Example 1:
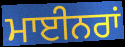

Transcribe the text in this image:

ਮਾਈਨਰਾਂ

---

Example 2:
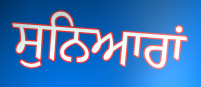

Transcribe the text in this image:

ਸੁਨਿਆਰਾਂ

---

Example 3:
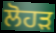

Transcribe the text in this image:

ਲੋਹੜ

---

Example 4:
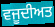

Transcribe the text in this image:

ਵਜੂਦੀਅਤ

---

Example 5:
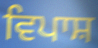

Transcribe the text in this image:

ਵਿਪਾਸ਼